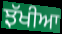
ਝੱਖੀਆ